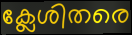
ക്ലേശിതരെ